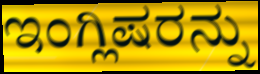
ಇಂಗ್ಲಿಷರನ್ನು